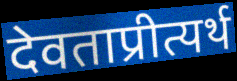
देवताप्रीत्यर्थ